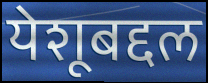
येशूबद्दल